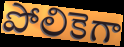
పోలికెగా